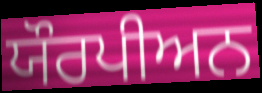
ਯੌਰਪੀਅਨ